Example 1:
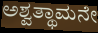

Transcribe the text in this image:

ಅಶ್ವತ್ಥಾಮನೇ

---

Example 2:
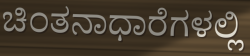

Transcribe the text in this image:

ಚಿಂತನಾಧಾರೆಗಳಲ್ಲಿ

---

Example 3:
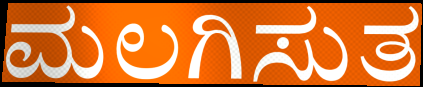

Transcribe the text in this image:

ಮಲಗಿಸುತ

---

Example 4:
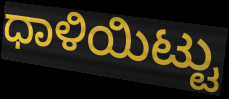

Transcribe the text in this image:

ಧಾಳಿಯಿಟ್ಟು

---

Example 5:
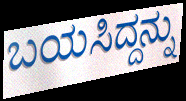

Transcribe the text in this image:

ಬಯಸಿದ್ದನ್ನು